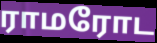
ராமரோட